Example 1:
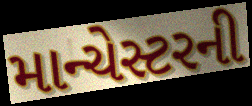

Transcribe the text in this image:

માન્ચેસ્ટરની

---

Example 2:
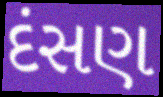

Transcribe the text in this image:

દંસણ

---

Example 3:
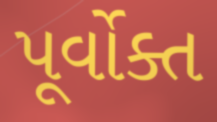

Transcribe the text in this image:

પૂર્વોક્ત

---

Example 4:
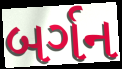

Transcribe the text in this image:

બર્ગન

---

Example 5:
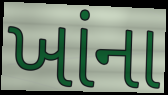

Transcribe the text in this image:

ખાંના